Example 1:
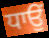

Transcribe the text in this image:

ਧਾਉਂ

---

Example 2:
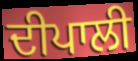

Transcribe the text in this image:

ਦੀਪਾਲੀ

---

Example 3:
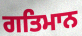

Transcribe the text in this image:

ਗਤਿਮਾਨ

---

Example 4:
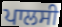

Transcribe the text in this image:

ਪਾਲਸੀ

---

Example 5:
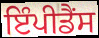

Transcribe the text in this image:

ਇੰਪੀਡੈਂਸ